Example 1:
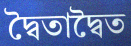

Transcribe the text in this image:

দ্বৈতাদ্বৈত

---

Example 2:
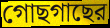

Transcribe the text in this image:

গোছগাছের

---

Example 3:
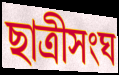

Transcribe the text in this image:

ছাত্রীসংঘ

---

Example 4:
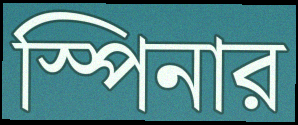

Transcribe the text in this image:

স্পিনার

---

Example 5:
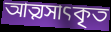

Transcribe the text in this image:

আত্মসাৎকৃত